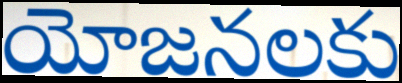
యోజనలకు